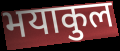
भयाकुल